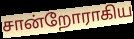
சான்றோராகிய